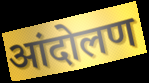
आंदोलण